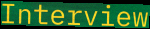
Interview